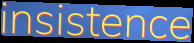
insistence